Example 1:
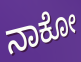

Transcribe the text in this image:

ನಾಕೋ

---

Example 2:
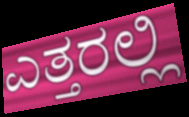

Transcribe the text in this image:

ಎತ್ತರಲ್ಲಿ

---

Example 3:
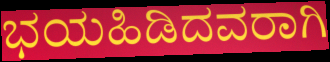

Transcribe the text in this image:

ಭಯಹಿಡಿದವರಾಗಿ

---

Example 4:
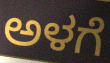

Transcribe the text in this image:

ಅಳಗೆ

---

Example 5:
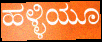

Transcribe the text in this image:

ಹಳ್ಳಿಯೂ